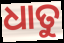
ଧାତୁ